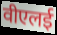
वीएलई